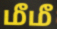
மீமீ